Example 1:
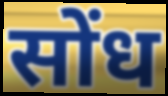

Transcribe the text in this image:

सोंध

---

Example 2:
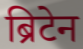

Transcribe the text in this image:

ब्रिटेन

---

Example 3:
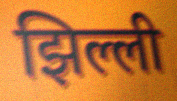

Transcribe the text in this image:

झिल्ली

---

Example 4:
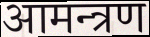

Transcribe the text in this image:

आमन्त्रण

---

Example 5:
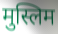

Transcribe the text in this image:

मुस्लिम